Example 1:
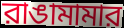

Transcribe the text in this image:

রাঙামামার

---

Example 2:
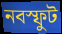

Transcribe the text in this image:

নবস্ফুট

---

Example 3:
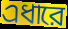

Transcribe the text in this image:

এধারে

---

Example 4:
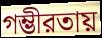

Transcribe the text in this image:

গম্ভীরতায়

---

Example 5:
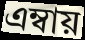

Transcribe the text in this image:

এম্বায়